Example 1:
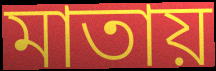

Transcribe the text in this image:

মাতায়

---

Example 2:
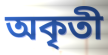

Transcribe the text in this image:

অকৃতী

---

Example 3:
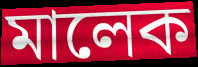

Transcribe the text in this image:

মালেক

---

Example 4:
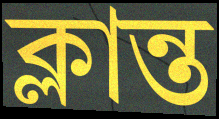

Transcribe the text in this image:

ক্লান্ত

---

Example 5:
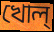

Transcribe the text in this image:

খোল্